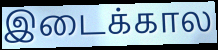
இடைக்கால